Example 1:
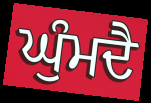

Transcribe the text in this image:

ਘੁੰਮਦੈ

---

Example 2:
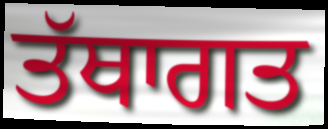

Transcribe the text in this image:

ਤੱਥਾਗਤ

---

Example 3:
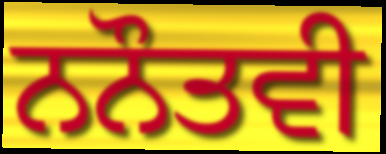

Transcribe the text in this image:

ਨਨੌਤਵੀ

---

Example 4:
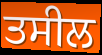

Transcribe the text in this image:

ਤਸੀਲ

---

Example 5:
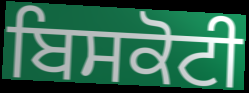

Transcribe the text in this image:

ਬਿਸਕੋਟੀ